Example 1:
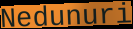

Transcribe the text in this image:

Nedunuri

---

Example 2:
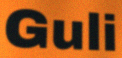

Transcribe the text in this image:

Guli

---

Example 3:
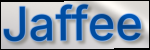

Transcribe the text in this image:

Jaffee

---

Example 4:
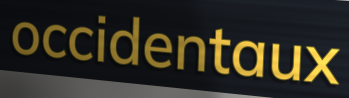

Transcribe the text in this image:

occidentaux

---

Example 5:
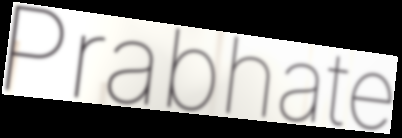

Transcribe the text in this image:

Prabhate